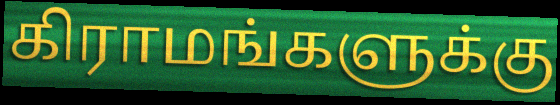
கிராமங்களுக்கு